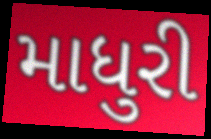
માધુરી